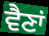
ਵੈਣਾਂ